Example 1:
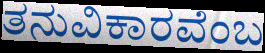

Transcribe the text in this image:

ತನುವಿಕಾರವೆಂಬ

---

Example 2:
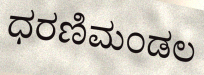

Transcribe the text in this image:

ಧರಣಿಮಂಡಲ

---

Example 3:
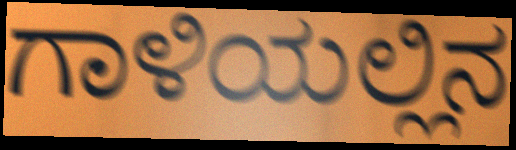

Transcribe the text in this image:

ಗಾಳಿಯಲ್ಲಿನ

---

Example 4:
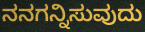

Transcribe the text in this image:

ನನಗನ್ನಿಸುವುದು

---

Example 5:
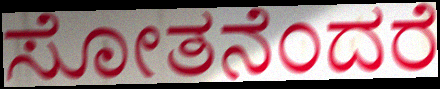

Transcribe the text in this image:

ಸೋತನೆಂದರೆ